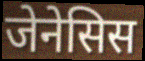
जेनेसिस